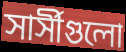
সার্সীগুলো